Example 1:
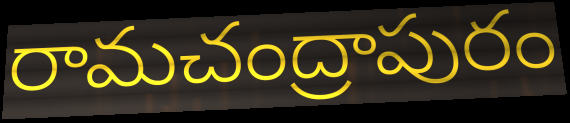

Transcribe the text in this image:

రామచంద్రాపురం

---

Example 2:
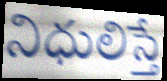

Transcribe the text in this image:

నిధులిస్తే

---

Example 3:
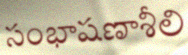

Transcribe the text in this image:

సంభాషణాశీలి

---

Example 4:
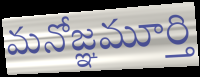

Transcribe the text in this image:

మనోజ్ఞమూర్తి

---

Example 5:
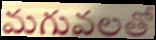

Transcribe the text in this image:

మగువలతో